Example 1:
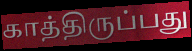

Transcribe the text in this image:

காத்திருப்பது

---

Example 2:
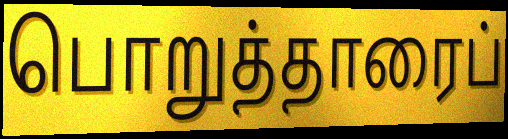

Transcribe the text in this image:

பொறுத்தாரைப்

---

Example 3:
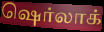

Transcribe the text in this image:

ஷெர்லாக்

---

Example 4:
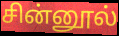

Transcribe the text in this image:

சின்னூல்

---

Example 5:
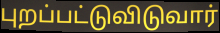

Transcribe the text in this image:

புறப்பட்டுவிடுவார்